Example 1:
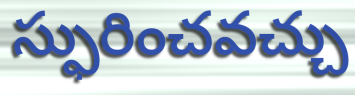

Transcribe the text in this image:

స్ఫురించవచ్చు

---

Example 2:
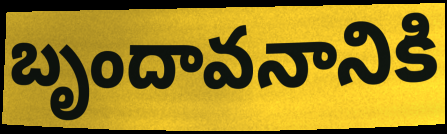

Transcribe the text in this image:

బృందావనానికి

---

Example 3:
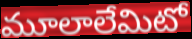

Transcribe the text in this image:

మూలాలేమిటో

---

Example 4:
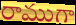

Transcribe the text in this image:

రాముగా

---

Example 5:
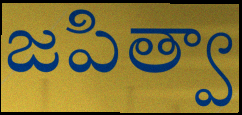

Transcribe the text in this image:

జపిత్వా